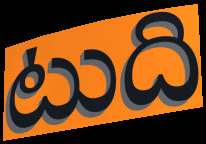
టుది